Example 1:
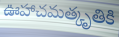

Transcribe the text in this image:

ఊహాచమత్కృతికి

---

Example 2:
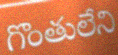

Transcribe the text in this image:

గొంతులేని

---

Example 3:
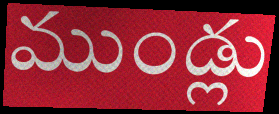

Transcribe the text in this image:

ముండ్లు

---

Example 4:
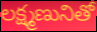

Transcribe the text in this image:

లక్ష్మణునితో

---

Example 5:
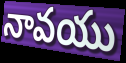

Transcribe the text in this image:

నావయు